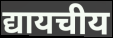
द्यायचीय